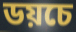
ডয়চে